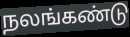
நலங்கண்டு